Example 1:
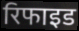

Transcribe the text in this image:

रिफाइड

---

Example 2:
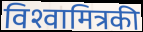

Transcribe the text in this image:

विश्वामित्रकी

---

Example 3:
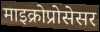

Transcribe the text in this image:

माइक्रोप्रोसेसर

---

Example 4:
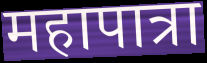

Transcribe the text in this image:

महापात्रा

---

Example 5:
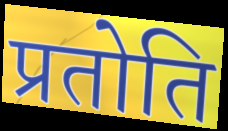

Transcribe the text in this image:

प्रतोति